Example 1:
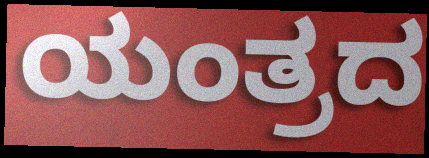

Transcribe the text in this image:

ಯಂತ್ರದ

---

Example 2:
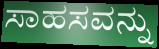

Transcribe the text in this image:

ಸಾಹಸವನ್ನು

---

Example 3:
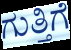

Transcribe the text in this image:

ಗುತ್ತಿಗೆ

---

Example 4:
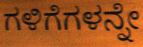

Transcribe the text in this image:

ಗಳಿಗೆಗಳನ್ನೇ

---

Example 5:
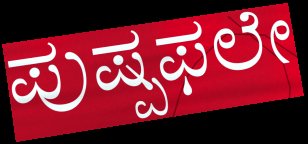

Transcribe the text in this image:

ಪುಷ್ಪಫಲೇ